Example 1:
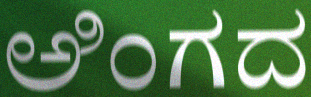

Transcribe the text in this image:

ಅಿಂಗದ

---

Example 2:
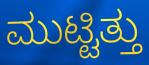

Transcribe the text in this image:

ಮುಟ್ಟಿತ್ತು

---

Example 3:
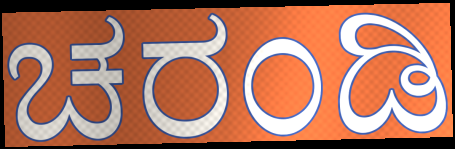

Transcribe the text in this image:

ಚರಂಡಿ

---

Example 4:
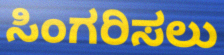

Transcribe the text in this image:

ಸಿಂಗರಿಸಲು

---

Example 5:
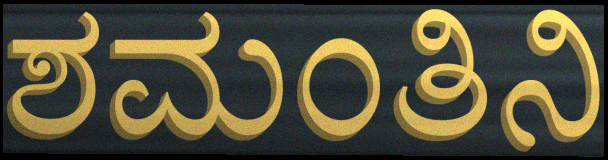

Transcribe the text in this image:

ಶಮಂತಿನಿ